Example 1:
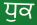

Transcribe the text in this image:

ਧੁਕ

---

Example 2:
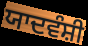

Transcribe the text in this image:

ਯਾਦਵੰਸ਼ੀ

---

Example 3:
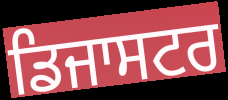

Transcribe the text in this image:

ਡਿਜਾਸਟਰ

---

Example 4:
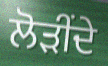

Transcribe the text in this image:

ਲੋੜੀਂਦੇ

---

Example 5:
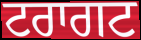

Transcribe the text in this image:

ਟਰਾਗਟ